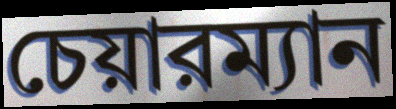
চেয়ারম্যান